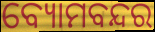
ବ୍ୟୋମବନ୍ଦର